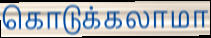
கொடுக்கலாமா